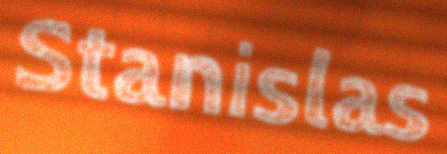
Stanislas